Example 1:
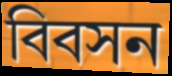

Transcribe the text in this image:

বিবসন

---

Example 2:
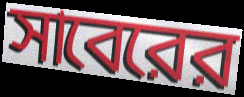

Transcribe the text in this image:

সাবেরের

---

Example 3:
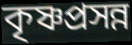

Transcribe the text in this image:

কৃষ্ণপ্রসন্ন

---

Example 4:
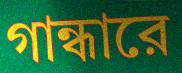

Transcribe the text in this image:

গান্ধারে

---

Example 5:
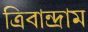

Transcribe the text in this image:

ত্রিবান্দ্রাম